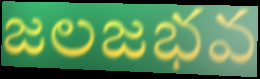
జలజభవ